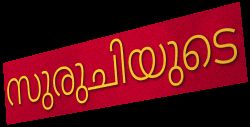
സുരുചിയുടെ